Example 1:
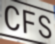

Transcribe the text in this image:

CFS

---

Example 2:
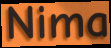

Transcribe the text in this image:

Nima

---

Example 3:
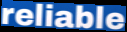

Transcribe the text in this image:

reliable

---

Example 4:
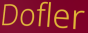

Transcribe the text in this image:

Dofler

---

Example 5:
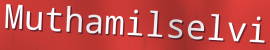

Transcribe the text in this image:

Muthamilselvi